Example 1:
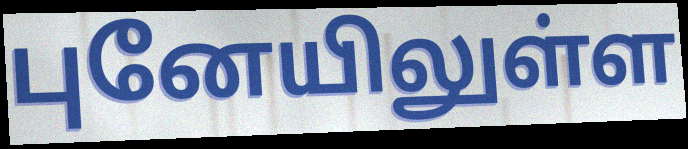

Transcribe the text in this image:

புனேயிலுள்ள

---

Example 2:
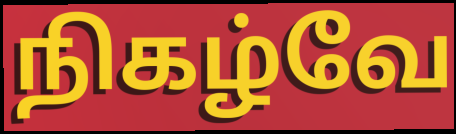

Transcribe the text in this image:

நிகழ்வே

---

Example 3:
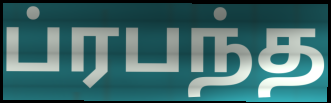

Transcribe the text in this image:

ப்ரபந்த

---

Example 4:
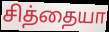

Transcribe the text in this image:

சித்தையா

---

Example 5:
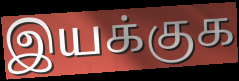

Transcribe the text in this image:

இயக்குக